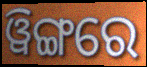
ୱିଙ୍ଗରେ